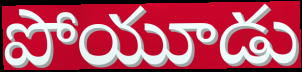
పోయూడు